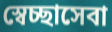
স্বেচ্ছাসেবা